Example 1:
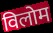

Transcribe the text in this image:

विलोम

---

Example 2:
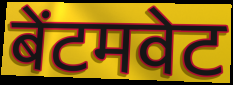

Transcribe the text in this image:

बेंटमवेट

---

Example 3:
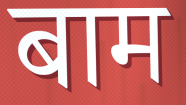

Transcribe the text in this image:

बाम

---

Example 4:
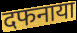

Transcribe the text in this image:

दफनाया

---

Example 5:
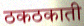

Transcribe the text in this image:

ठकठकाती